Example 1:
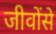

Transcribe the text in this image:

जीवोंसे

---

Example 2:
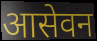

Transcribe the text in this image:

आसेवन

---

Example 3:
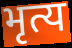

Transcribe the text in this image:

भृत्य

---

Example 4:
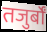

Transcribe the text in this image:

तजुर्बों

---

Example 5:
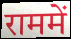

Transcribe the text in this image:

राममें